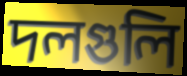
দলগুলি